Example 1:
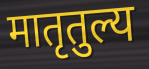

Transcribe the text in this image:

मातृतुल्य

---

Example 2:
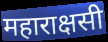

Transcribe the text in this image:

महाराक्षसी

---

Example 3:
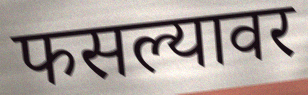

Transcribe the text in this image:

फसल्यावर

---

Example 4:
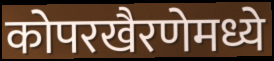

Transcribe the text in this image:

कोपरखैरणेमध्ये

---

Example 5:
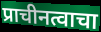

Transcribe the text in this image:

प्राचीनत्वाचा